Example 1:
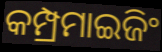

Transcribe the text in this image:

କମ୍ପ୍ରମାଇଜିଂ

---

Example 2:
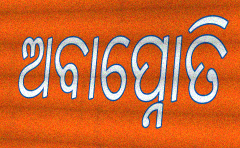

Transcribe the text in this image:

ଅବାପ୍ନୋତି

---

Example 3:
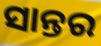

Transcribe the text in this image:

ସାନ୍ତର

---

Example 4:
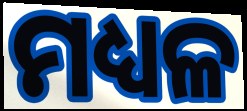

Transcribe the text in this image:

ମଧ୍ୟଳ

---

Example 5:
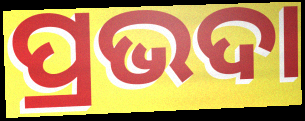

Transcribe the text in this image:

ପ୍ରଭଦା